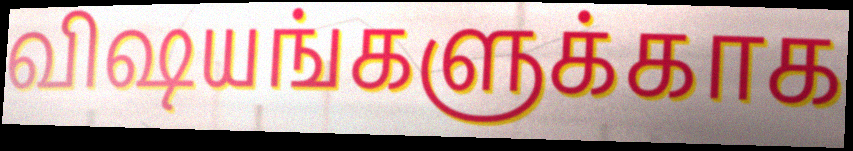
விஷயங்களுக்காக